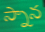
స్నాన